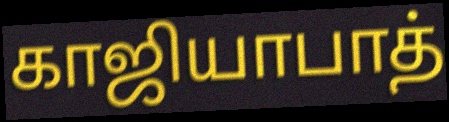
காஜியாபாத்